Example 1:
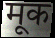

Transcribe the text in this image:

मूक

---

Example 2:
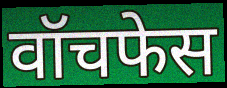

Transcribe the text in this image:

वॉचफेस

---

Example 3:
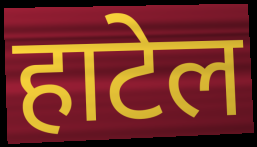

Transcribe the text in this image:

हाटेल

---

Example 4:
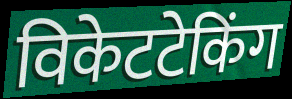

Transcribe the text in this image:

विकेटटेकिंग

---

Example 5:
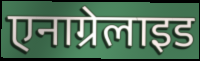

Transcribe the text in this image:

एनाग्रेलाइड